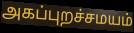
அகப்புறச்சமயம்